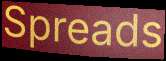
Spreads